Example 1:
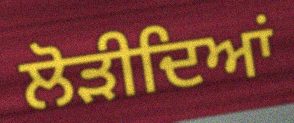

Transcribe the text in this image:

ਲੋੜੀਦਿਆਂ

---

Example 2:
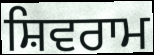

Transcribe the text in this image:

ਸ਼ਿਵਰਾਮ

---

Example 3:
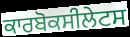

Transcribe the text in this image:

ਕਾਰਬੋਕਸੀਲੇਟਸ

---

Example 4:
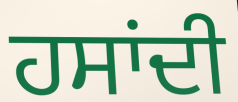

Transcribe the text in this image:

ਹਸਾਂਦੀ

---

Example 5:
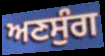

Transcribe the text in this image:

ਅਣਸੁੰਗ